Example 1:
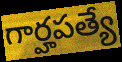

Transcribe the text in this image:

గార్హపత్యే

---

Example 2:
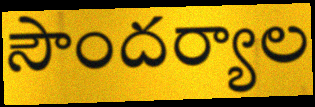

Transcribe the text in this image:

సౌందర్యాల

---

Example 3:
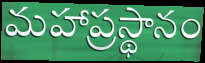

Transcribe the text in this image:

మహాప్రస్థానం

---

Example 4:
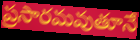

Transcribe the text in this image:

ప్రసారమవుతూనే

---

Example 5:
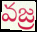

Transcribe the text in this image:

వజ్ర